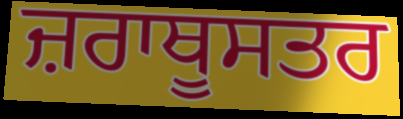
ਜ਼ਰਾਥੂਸਤਰ